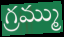
గ్రమ్ము